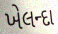
ખેલન્દા